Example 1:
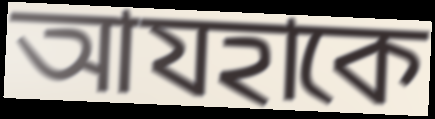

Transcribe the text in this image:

আযহাকে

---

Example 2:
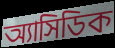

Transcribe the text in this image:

অ্যাসিডিক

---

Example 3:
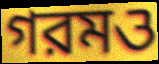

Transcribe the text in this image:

গরমও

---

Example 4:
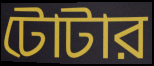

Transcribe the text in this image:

টোটার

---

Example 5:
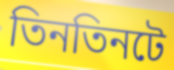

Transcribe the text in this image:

তিনতিনটে